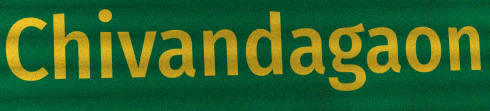
Chivandagaon